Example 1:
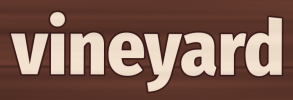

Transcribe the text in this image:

vineyard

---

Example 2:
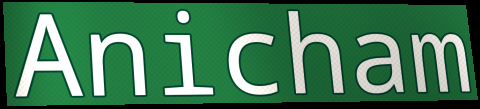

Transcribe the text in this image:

Anicham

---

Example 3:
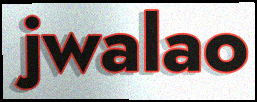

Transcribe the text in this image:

jwalao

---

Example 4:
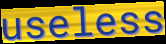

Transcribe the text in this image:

useless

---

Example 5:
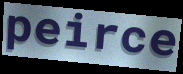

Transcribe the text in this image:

peirce